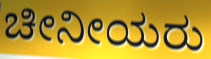
ಚೀನೀಯರು